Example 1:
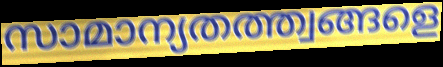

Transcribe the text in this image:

സാമാന്യതത്ത്വങ്ങളെ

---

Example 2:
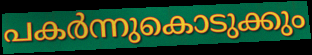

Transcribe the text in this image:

പകർന്നുകൊടുക്കും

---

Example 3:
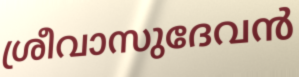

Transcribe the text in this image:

ശ്രീവാസുദേവൻ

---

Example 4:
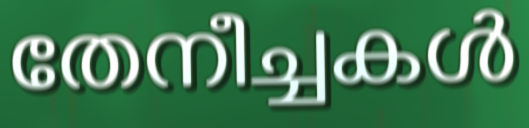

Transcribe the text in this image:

തേനീച്ചകൾ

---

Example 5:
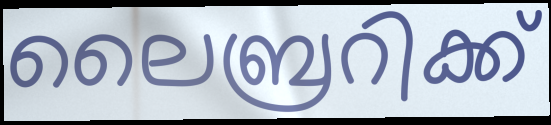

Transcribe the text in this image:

ലൈബ്രറിക്ക്